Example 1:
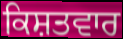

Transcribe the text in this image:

ਕਿਸ਼ਤਵਾਰ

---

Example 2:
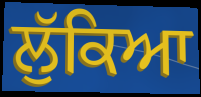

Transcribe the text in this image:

ਲੁੱਕਿਆ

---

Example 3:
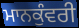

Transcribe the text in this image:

ਮਾਨਕੁੰਵਰੀ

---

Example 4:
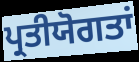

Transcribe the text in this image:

ਪ੍ਰਤੀਯੋਗਤਾਂ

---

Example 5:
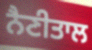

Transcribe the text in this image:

ਨੈਣੀਤਾਲ